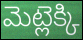
మెట్లెక్కి